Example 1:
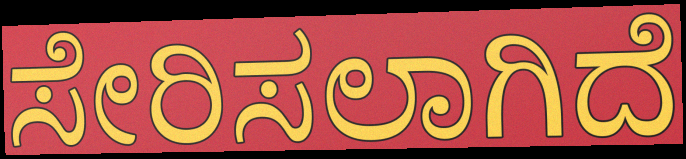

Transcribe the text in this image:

ಸೇರಿಸಲಾಗಿದೆ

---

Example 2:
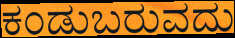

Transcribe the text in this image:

ಕಂಡುಬರುವದು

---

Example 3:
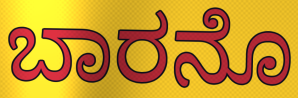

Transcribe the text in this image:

ಬಾರನೊ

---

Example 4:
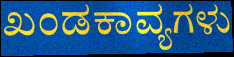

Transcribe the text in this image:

ಖಂಡಕಾವ್ಯಗಳು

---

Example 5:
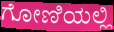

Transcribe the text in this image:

ಗೋಣಿಯಲ್ಲಿ